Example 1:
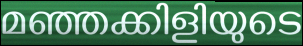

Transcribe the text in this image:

മഞ്ഞക്കിളിയുടെ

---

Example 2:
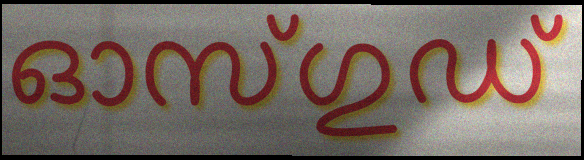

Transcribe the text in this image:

ഓസ്ഗുഡ്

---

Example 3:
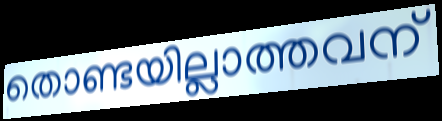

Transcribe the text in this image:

തൊണ്ടയില്ലാത്തവന്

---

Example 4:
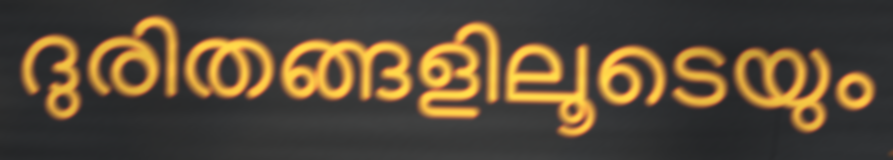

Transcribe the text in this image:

ദുരിതങ്ങളിലൂടെയും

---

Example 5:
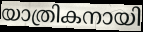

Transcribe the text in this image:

യാത്രികനായി